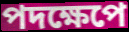
পদক্ষেপে